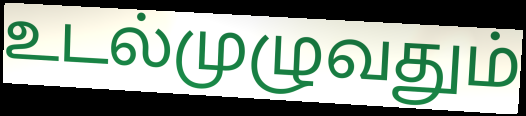
உடல்முழுவதும்